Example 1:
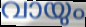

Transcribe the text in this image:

വായും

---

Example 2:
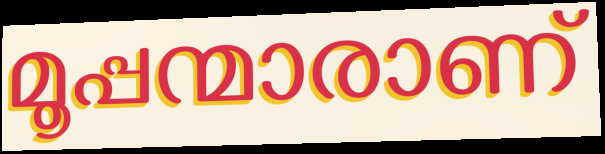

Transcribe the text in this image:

മൂപ്പന്മാരാണ്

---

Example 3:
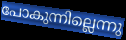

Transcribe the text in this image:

പോകുന്നില്ലെന്നു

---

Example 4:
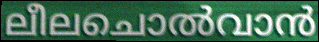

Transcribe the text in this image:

ലീലചൊൽവാൻ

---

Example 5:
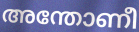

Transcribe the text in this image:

അന്തോണീ